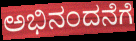
ಅಭಿನಂದನೆಗೆ